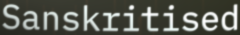
Sanskritised